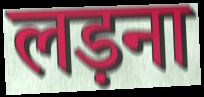
लड़ना